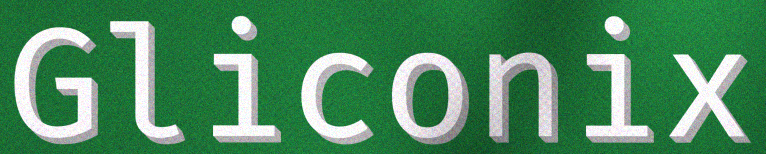
Gliconix